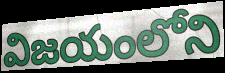
విజయంలోని